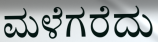
ಮಳೆಗರೆದು